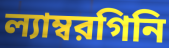
ল্যাম্বরগিনি